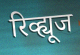
रिव्ह्यूज